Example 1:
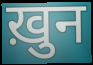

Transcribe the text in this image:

ख़ुन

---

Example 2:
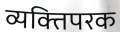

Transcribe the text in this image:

व्यक्तिपरक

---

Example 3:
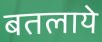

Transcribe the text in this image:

बतलाये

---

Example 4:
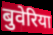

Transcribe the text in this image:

बुवेरिया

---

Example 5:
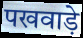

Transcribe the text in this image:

पखवाड़े